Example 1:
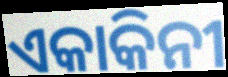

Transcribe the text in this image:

ଏକାକିନୀ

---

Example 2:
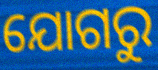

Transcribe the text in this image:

ଯୋଗରୁ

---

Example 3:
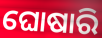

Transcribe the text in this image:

ଘୋଷାରି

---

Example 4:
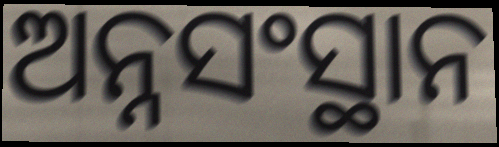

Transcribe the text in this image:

ଅନ୍ନସଂସ୍ଥାନ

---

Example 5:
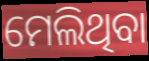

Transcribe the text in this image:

ମେଲିଥିବା